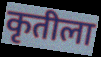
कृतीला